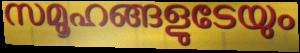
സമൂഹങ്ങളുടേയും